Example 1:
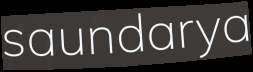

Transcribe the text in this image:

saundarya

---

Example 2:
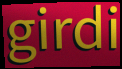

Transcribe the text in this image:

girdi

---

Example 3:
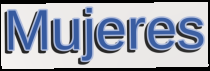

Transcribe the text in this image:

Mujeres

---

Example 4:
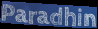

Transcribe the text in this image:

Paradhin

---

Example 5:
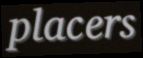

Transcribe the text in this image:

placers